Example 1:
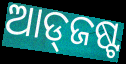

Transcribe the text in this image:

ଆଡ୍‌ଜଷ୍ଟ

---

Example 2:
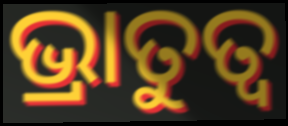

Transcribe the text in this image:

ଭ୍ରାତୁତ୍ଵ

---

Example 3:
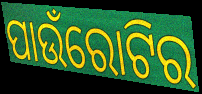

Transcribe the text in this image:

ପାଉଁରୋଟିର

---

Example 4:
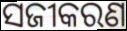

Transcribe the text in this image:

ସଜୀକରଣ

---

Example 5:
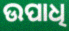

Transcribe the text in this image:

ଉପାଧି